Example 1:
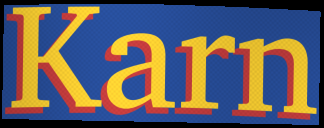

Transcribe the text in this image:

Karn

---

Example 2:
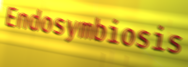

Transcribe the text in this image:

Endosymbiosis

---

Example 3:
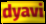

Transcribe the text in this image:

dyavi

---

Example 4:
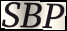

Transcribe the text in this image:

SBP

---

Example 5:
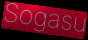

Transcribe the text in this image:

Sogasu